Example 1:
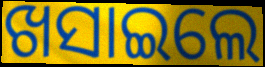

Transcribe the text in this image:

ଖସାଇଲେ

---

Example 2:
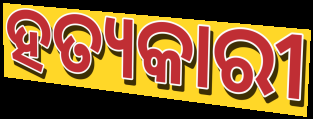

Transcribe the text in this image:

ହତ୍ୟକାରୀ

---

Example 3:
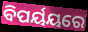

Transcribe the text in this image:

ବିପର୍ୟୟରେ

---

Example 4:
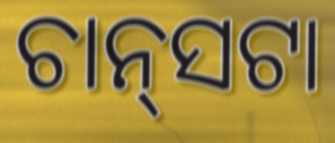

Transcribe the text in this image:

ଚାନ୍‌ସଟା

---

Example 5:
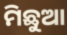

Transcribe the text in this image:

ମିଛୁଆ